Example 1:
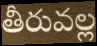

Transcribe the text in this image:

తీరువల్ల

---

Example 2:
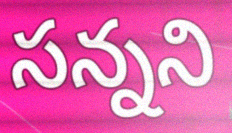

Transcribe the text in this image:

సన్నని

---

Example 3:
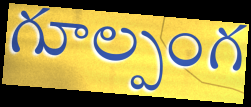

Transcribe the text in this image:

గూల్పంగ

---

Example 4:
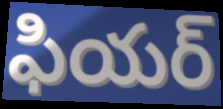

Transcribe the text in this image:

ఫియర్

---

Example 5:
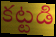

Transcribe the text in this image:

కట్టడి